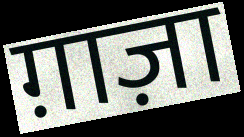
ग़ाज़ा